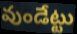
వుండేట్టు